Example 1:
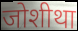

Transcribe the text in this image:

जोशीथा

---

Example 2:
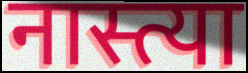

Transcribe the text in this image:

नास्त्या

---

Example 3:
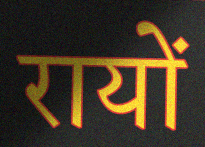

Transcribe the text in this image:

रायों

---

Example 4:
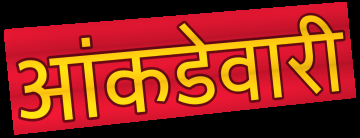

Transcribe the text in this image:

आंकडेवारी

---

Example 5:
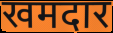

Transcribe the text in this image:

खमदार